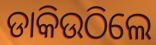
ଡାକିଉଠିଲେ